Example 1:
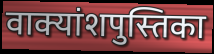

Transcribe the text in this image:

वाक्यांशपुस्तिका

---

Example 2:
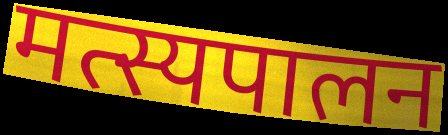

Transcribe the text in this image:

मत्स्यपालन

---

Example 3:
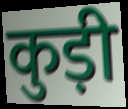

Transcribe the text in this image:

कुड़ी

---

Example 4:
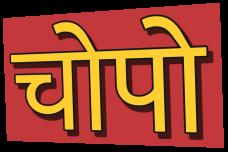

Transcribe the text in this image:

चोपो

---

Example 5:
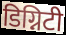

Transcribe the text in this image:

डिग्निटी